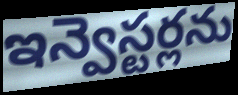
ఇన్వెస్టర్లను